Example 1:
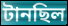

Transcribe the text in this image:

টানছিল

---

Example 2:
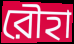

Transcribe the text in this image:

রৌহা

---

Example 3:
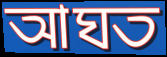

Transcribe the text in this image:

আঘত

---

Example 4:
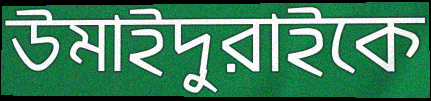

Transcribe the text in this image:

উমাইদুরাইকে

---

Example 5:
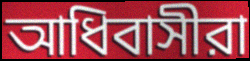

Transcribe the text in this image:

আধিবাসীরা